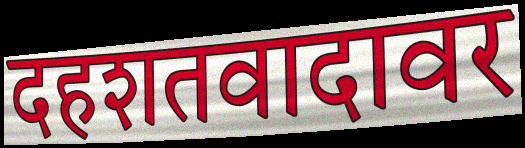
दहशतवादावर